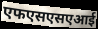
एफएसएसएआई